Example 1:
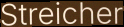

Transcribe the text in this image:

Streicher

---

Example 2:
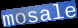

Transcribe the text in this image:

mosale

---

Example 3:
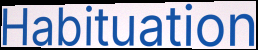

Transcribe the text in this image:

Habituation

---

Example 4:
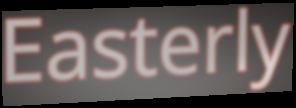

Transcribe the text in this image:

Easterly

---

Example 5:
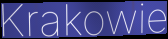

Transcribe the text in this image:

Krakowie